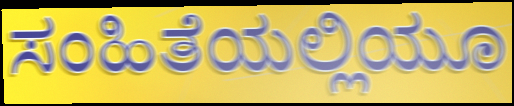
ಸಂಹಿತೆಯಲ್ಲಿಯೂ